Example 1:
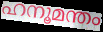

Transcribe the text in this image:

ഹനൂമന്തം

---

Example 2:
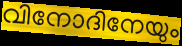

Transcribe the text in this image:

വിനോദിനേയും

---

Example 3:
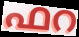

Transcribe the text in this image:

ഫറ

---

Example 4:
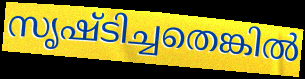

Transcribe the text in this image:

സൃഷ്ടിച്ചതെങ്കിൽ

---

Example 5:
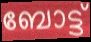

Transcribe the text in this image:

ബോട്ട്